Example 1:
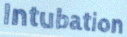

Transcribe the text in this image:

Intubation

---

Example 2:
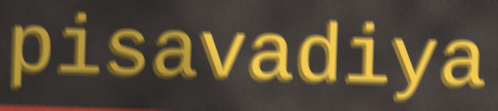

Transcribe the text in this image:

pisavadiya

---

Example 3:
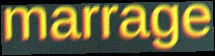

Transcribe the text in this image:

marrage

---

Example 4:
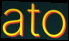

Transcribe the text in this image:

ato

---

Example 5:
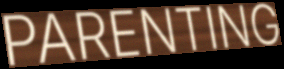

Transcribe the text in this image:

PARENTING